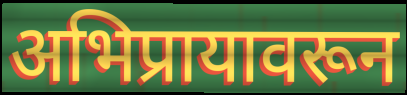
अभिप्रायावरून